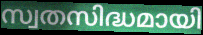
സ്വതസിദ്ധമായി